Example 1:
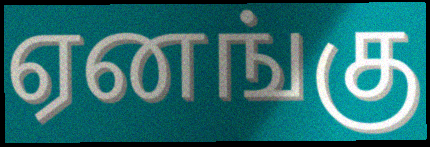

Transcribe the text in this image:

ஏனங்கு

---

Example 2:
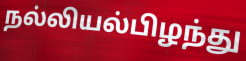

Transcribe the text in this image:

நல்லியல்பிழந்து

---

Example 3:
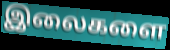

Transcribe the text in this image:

இலைகளை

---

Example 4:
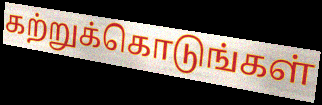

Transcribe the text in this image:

கற்றுக்கொடுங்கள்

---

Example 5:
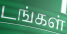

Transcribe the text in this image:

டங்கள்